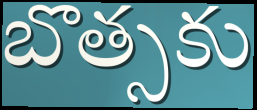
బొత్సకు